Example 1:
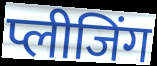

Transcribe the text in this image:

प्लीजिंग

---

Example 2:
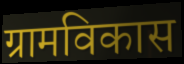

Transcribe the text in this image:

ग्रामविकास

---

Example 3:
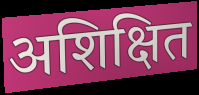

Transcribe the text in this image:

अशिक्षित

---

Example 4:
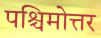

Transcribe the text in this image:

पश्चिमोत्तर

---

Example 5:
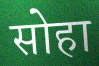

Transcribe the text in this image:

सोहा